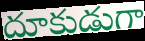
దూకుడుగా